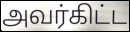
அவர்கிட்ட